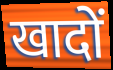
खादों